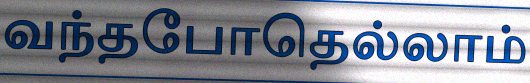
வந்தபோதெல்லாம்